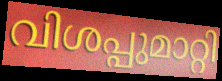
വിശപ്പുമാറ്റി